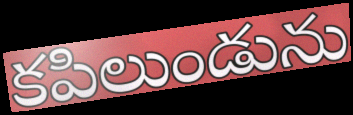
కపిలుండును